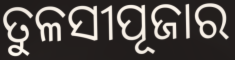
ତୁଳସୀପୂଜାର